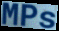
MPs